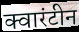
क्वारंटीन